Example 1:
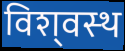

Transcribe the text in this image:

विश्वस्थ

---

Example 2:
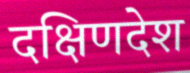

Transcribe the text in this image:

दक्षिणदेश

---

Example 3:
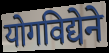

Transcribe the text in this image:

योगविद्येने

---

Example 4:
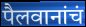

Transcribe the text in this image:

पैलवानांचं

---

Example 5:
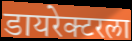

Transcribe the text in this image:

डायरेक्टरला